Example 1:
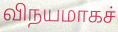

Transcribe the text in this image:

விநயமாகச்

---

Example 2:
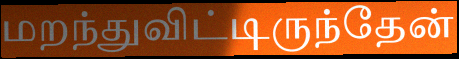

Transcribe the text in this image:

மறந்துவிட்டிருந்தேன்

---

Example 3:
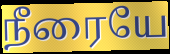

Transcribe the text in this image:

நீரையே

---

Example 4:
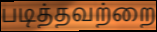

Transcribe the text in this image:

படித்தவற்றை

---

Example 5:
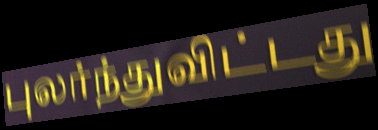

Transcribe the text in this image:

புலர்ந்துவிட்டது